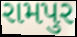
રામપુર